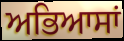
ਅਭਿਆਸਾਂ